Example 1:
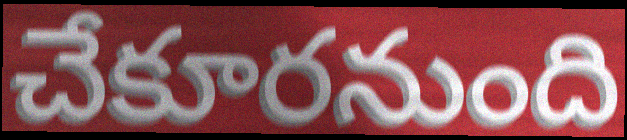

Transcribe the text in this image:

చేకూరనుంది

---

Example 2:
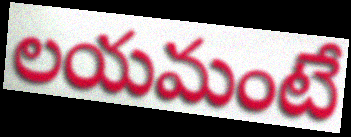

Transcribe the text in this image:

లయమంటే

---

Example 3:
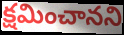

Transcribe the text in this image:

క్షమించానని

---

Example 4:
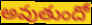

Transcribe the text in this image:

అవుతుందో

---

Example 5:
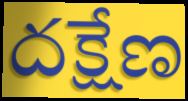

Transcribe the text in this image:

దక్షేణ